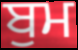
ਬੁਮ